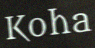
Koha